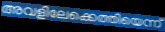
അവളിലേക്കെത്തിയെന്ന്